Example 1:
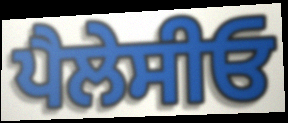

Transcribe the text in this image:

ਪੈਲੇਸੀਓ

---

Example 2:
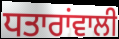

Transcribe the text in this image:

ਧਤਾਰਾਂਵਾਲੀ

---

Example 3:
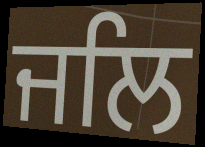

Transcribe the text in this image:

ਜਲਿ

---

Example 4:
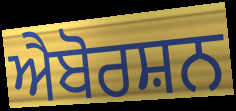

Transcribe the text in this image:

ਐਬੋਰਸ਼ਨ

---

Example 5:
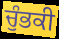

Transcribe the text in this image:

ਚੁੰਭਕੀ